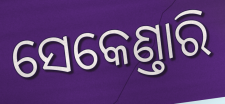
ସେକେଣ୍ତାରି